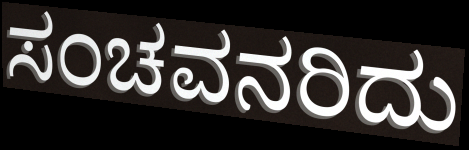
ಸಂಚವನರಿದು